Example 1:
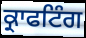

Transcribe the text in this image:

ਕ੍ਰਾਫਟਿੰਗ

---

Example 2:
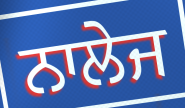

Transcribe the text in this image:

ਨਾਲੇਜ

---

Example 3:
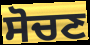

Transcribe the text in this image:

ਸੋਚਣ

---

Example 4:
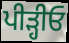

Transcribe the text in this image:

ਪੀੜ੍ਹੀਓ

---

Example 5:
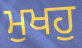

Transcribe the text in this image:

ਮੁਖਹੁ